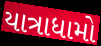
યાત્રાધામો